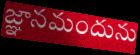
జ్ఞానమందును